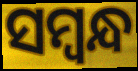
ସମ୍ବନ୍ଧ